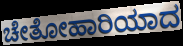
ಚೇತೋಹಾರಿಯಾದ